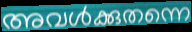
അവൾക്കുതന്നെ